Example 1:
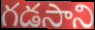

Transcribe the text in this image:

గడసాని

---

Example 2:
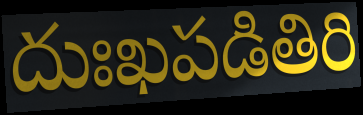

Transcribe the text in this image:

దుఃఖపడితిరి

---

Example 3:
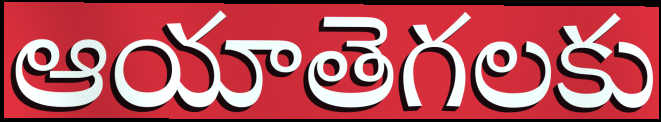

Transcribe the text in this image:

ఆయాతెగలకు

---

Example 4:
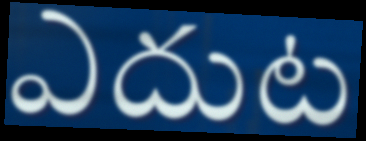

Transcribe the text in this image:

ఎదుట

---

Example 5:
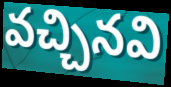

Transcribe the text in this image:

వచ్చినవి